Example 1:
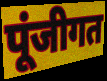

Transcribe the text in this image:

पूंजीगत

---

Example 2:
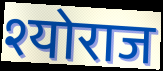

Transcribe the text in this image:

श्योराज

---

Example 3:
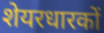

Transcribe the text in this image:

शेयरधारकों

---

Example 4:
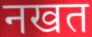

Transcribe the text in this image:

नखत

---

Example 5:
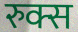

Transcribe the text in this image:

रुक्स